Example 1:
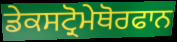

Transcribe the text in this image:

ਡੇਕਸਟ੍ਰੋਮੇਥੋਰਫਾਨ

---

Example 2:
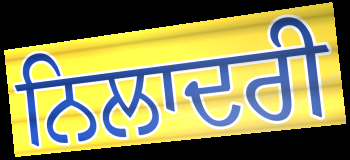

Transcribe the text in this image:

ਨਿਲਾਦਰੀ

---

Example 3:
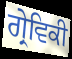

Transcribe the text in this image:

ਗ੍ਰੇਵਿਕੀ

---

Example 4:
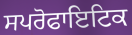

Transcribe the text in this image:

ਸਪਰੋਫਾਇਟਿਕ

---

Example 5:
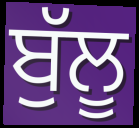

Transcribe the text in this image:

ਬੁੱਲੂ